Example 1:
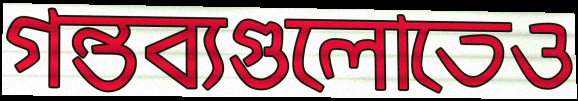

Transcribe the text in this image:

গন্তব্যগুলোতেও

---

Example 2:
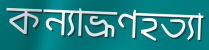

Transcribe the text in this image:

কন্যাভ্রূণহত্যা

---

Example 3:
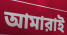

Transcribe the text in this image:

আমারাই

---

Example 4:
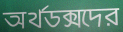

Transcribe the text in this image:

অর্থডক্সদের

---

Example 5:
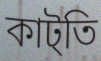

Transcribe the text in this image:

কাট্তি